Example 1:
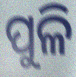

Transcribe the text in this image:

ପୁଳି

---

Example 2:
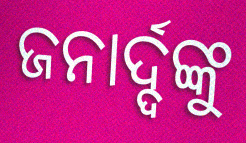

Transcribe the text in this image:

ଜନାର୍ଦ୍ଦଙ୍କୁ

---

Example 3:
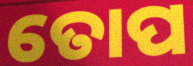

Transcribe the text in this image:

ତୋପ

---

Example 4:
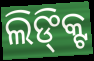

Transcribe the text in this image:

ଲିଙ୍କ୍ଟି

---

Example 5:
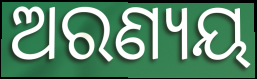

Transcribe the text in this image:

ଅରଣ୍ୟୟ